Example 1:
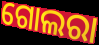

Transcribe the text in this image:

ଗୋଲରା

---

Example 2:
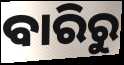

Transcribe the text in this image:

ବାରିରୁ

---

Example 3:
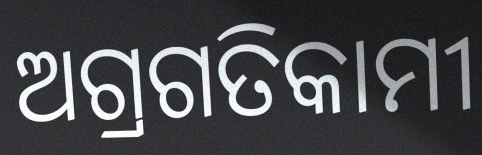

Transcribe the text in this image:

ଅଗ୍ରଗତିକାମୀ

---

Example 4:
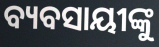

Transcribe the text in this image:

ବ୍ୟବସାୟୀଙ୍କୁ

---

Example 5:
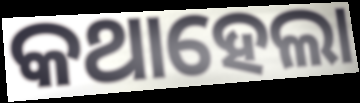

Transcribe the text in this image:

କଥାହେଲା